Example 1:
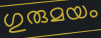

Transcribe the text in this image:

ഗുരുമയം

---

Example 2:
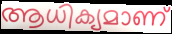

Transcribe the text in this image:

ആധിക്യമാണ്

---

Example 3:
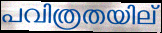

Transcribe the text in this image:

പവിത്രതയില്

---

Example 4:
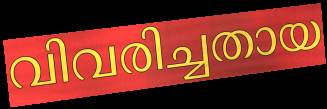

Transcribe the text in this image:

വിവരിച്ചതായ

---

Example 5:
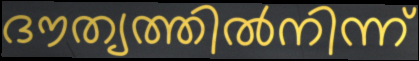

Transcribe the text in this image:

ദൗത്യത്തിൽനിന്ന്